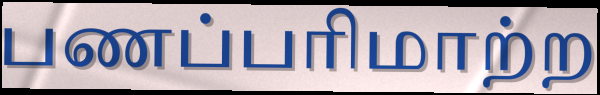
பணப்பரிமாற்ற